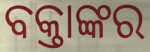
ବକ୍ତାଙ୍କର